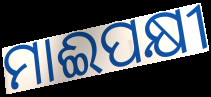
ମାଈପକ୍ଷୀ